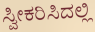
ಸ್ವೀಕರಿಸಿದಲ್ಲಿ